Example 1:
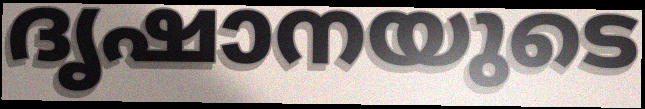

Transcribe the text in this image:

ദൃഷാനയുടെ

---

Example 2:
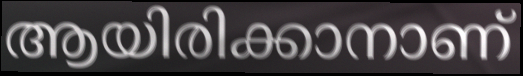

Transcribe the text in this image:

ആയിരിക്കാനാണ്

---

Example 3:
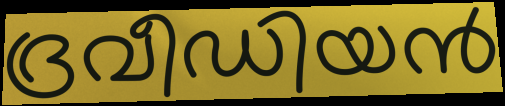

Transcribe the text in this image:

ദ്രവീഡിയൻ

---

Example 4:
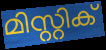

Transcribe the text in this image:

മിസ്റ്റിക്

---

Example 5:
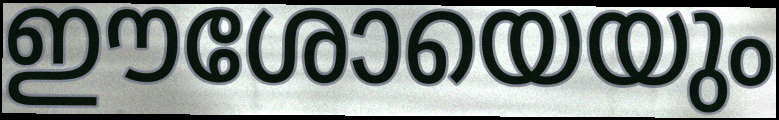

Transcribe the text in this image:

ഈശോയെയും